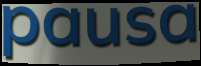
pausa